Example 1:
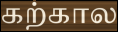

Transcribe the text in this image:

கற்கால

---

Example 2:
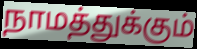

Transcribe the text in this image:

நாமத்துக்கும்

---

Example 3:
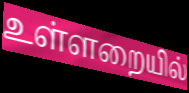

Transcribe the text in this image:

உள்ளறையில்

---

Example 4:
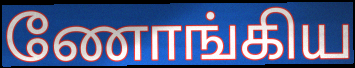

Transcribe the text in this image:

ணோங்கிய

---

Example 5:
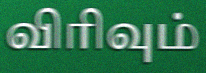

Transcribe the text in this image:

விரிவும்